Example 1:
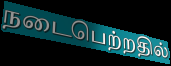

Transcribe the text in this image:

நடைபெற்றதில்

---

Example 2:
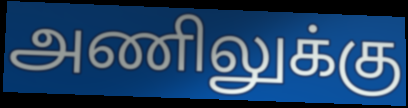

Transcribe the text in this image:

அணிலுக்கு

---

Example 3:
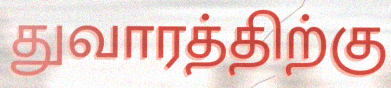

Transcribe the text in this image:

துவாரத்திற்கு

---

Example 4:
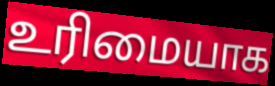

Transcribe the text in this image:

உரிமையாக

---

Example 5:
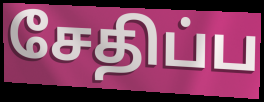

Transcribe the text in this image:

சேதிப்ப